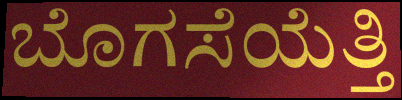
ಬೊಗಸೆಯೆತ್ತಿ